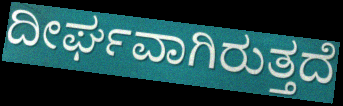
ದೀರ್ಘವಾಗಿರುತ್ತದೆ